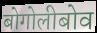
बोगोलीबोव